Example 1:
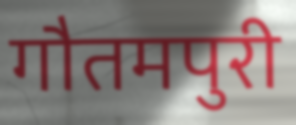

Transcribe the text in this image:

गौतमपुरी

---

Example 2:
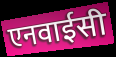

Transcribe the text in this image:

एनवाईसी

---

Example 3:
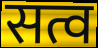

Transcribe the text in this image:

सत्व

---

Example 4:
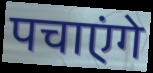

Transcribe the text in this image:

पचाएंगे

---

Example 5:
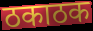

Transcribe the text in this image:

ठकाठक